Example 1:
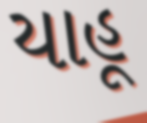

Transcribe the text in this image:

યાહૂ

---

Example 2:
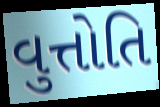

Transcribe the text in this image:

વુત્તોતિ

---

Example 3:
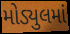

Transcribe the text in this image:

મોડ્યુલમાં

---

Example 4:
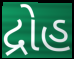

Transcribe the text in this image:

દ્રોહ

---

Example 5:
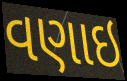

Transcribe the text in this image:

વણાઇ